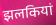
झलकियां